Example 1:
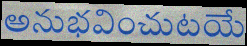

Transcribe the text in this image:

అనుభవించుటయే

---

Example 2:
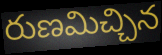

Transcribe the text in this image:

రుణమిచ్చిన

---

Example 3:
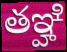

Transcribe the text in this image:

తఞ్హి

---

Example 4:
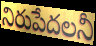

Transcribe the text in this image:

నిరుపేదలనీ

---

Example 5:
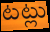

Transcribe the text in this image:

టట్లు